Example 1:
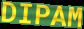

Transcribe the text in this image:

DIPAM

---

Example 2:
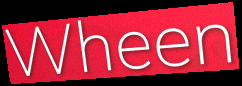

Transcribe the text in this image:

Wheen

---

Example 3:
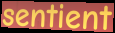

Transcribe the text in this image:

sentient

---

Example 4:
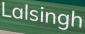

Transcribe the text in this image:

Lalsingh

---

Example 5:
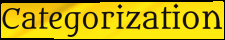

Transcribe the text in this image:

Categorization